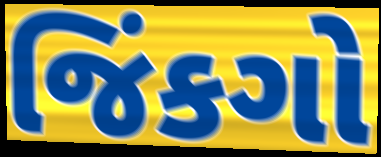
જિંકગો